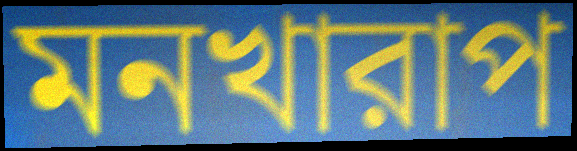
মনখারাপ